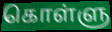
கொள்ளு